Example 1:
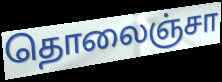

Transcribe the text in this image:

தொலைஞ்சா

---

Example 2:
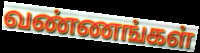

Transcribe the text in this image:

வண்ணங்கள்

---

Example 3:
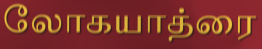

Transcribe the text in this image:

லோகயாத்ரை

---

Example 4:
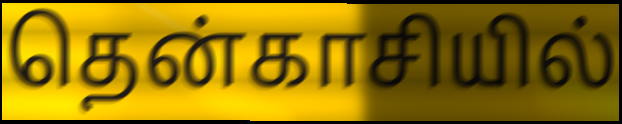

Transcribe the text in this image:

தென்காசியில்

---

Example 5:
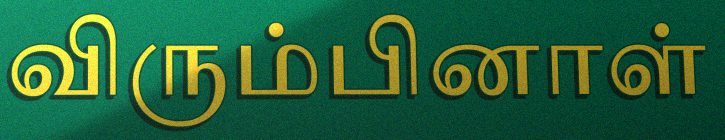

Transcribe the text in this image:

விரும்பினாள்